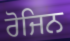
ਰੋਜਿਨ